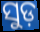
ସୁଡ଼